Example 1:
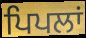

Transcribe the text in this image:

ਪਿਪਲਾਂ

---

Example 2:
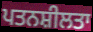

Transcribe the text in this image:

ਪਤਨਸ਼ੀਲਤਾ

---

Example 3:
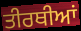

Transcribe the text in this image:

ਤੀਰਥੀਆਂ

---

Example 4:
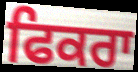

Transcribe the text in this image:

ਫਿਕਰਾ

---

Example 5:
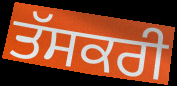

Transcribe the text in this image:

ਤੱਸਕਰੀ